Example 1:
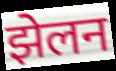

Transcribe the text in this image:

झेलन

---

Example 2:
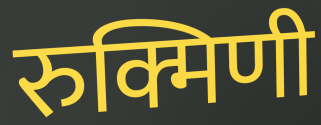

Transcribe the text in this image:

रुक्मिणी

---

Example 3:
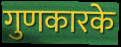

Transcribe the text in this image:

गुणकारके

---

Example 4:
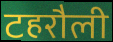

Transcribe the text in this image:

टहरौली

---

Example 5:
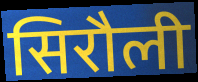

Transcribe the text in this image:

सिरौली